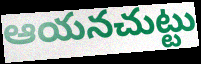
ఆయనచుట్టు